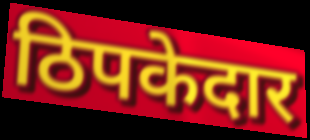
ठिपकेदार